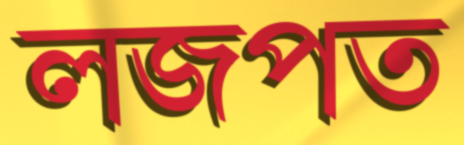
লজপত